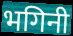
भगिनी